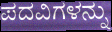
ಪದವಿಗಳನ್ನು